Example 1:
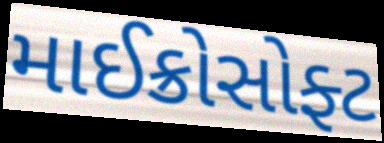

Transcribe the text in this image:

માઈક્રોસોફ્ટ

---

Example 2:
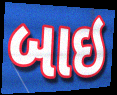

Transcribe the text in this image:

બાઇ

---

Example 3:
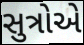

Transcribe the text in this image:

સુત્રોએ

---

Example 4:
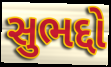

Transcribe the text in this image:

સુભદ્દો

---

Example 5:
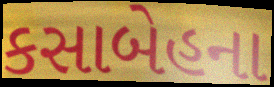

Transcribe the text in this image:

કસાબેહના